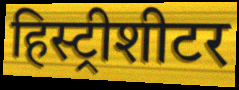
हिस्‍ट्रीशीटर